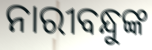
ନାରୀବନ୍ଧୁଙ୍କ